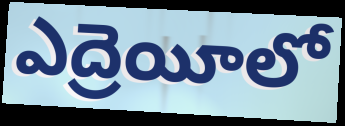
ఎద్రెయీలో